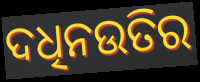
ଦଧିନଉତିର